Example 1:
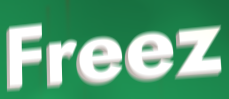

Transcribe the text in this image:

Freez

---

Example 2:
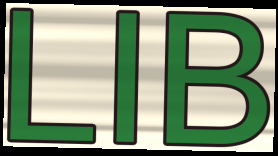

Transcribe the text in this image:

LIB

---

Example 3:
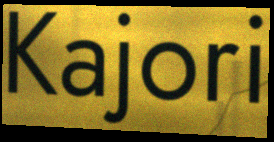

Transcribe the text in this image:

Kajori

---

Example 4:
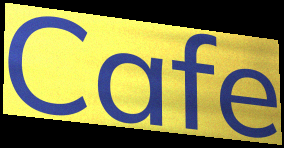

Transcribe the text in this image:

Cafe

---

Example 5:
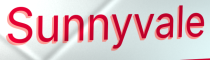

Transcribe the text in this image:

Sunnyvale